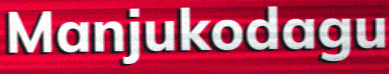
Manjukodagu